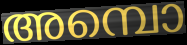
അമ്പൊ